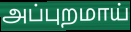
அப்புறமாய்